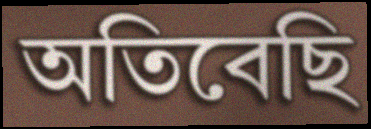
অতিবেছি